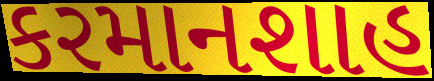
કરમાનશાહ